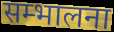
सम्भालना